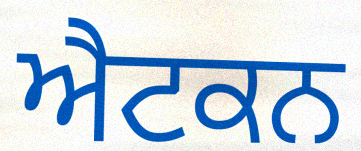
ਐਟਕਨ